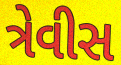
ત્રેવીસ